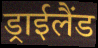
ड्राईलैंड